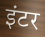
इंटर